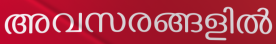
അവസരങ്ങളിൽ